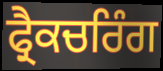
ਫ੍ਰੈਕਚਰਿੰਗ